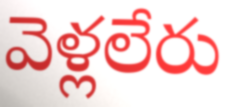
వెళ్లలేరు